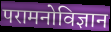
परामनोविज्ञान